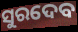
ସୁରଦେବ